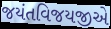
જયંતવિજયજીએ